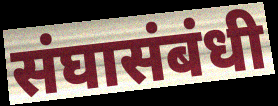
संघासंबंधी